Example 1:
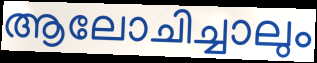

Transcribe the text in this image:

ആലോചിച്ചാലും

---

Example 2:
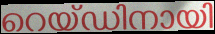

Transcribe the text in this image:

റെയ്ഡിനായി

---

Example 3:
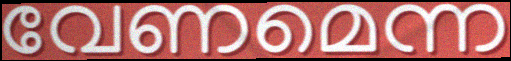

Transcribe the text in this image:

വേണമെന്ന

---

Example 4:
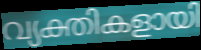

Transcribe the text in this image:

വ്യക്തികളായി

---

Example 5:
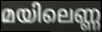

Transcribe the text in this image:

മയിലെണ്ണ